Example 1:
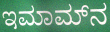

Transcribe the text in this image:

ಇಮಾಮ್‍ನ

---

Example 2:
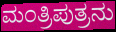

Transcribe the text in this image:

ಮಂತ್ರಿಪುತ್ರನು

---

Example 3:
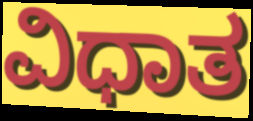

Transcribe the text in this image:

ವಿಧಾತ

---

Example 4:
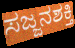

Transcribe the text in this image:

ಸಜ್ಜನಶಕ್ತಿ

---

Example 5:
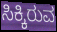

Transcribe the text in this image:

ಸಿಕ್ಕಿರುವ